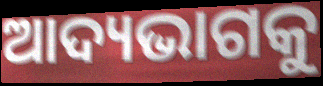
ଆଦ୍ୟଭାଗକୁ